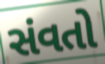
સંવતો